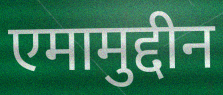
एमामुद्दीन